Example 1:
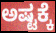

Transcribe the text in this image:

ಅಷ್ಟಕ್ಕೆ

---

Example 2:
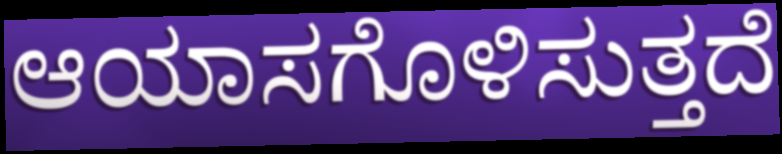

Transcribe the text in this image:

ಆಯಾಸಗೊಳಿಸುತ್ತದೆ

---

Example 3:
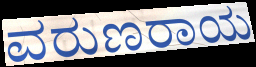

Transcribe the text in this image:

ವರುಣರಾಯ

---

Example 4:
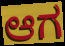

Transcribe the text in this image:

ಆಗ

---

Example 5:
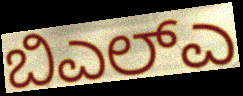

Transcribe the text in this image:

ಬಿಎಲ್ಎ